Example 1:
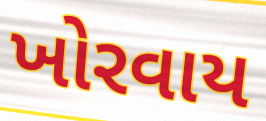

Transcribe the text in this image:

ખોરવાય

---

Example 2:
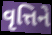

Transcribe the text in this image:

વૃત્તિને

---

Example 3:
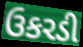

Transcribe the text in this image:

ઉકરડી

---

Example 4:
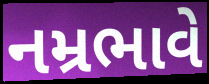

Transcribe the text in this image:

નમ્રભાવે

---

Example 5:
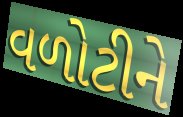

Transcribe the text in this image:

વળોટીને